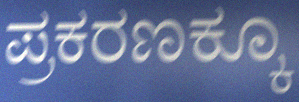
ಪ್ರಕರಣಕ್ಕೂ